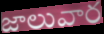
జాలువార